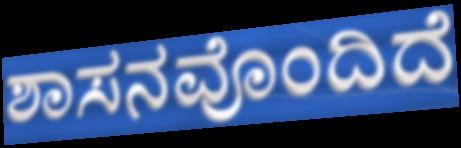
ಶಾಸನವೊಂದಿದೆ